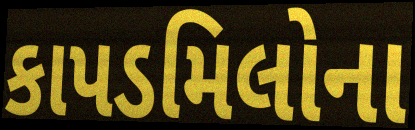
કાપડમિલોના